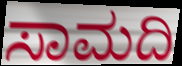
ಸಾಮದಿ